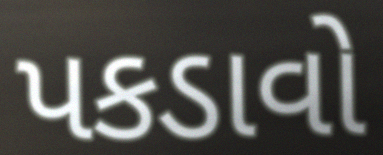
પકડાવો